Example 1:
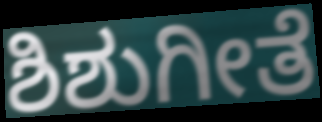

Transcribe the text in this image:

ಶಿಶುಗೀತೆ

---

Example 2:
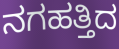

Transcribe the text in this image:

ನಗಹತ್ತಿದ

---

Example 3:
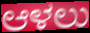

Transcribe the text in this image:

ಆಳಲು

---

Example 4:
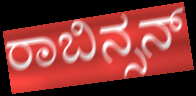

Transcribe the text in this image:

ರಾಬಿನ್ಸನ್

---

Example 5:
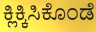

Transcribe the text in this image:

ಕ್ಲಿಕ್ಕಿಸಿಕೊಂಡೆ